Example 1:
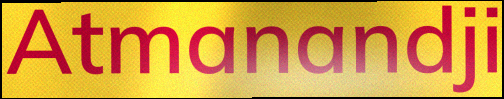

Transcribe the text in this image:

Atmanandji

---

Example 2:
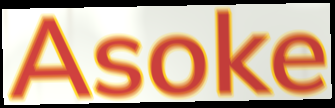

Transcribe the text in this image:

Asoke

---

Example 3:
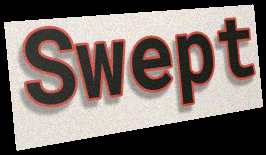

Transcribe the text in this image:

Swept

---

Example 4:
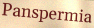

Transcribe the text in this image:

Panspermia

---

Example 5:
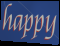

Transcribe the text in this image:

happy